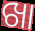
ଖା